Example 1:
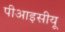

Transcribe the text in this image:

पीआइसीयू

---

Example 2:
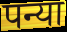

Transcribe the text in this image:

पन्या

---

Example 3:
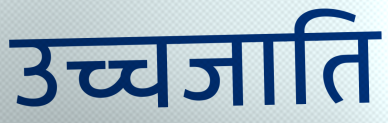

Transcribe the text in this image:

उच्चजाति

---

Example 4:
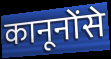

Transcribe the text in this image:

कानूनोंसे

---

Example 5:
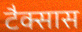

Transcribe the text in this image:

टैक्सास